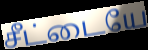
சீட்டையே